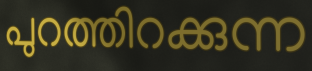
പുറത്തിറക്കുന്ന